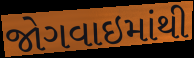
જોગવાઇમાંથી